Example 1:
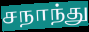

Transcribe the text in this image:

சநாந்து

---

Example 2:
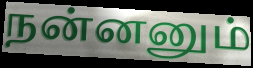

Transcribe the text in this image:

நன்னனும்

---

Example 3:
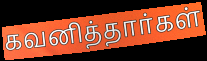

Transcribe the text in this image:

கவனித்தார்கள்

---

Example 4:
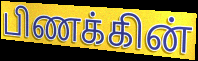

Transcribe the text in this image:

பிணக்கின்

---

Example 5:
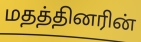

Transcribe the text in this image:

மதத்தினரின்